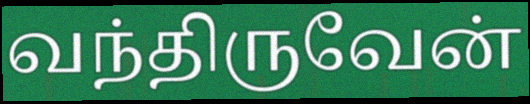
வந்திருவேன்